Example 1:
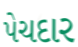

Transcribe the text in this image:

પેચદાર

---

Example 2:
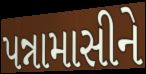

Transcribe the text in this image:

પન્નામાસીને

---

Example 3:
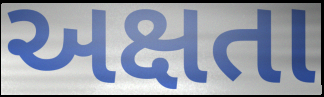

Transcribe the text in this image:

અક્ષતા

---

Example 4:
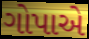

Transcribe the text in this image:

ગોપાએ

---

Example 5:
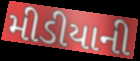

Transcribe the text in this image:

મીડીયાની